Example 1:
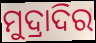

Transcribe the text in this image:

ମୁଦ୍ରାଦିର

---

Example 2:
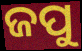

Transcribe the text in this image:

ଜପୁ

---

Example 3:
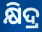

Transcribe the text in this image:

କ୍ଷିଦ୍ର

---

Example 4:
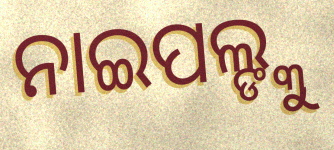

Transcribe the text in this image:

ନାଇପଲ୍ଙ୍କୁ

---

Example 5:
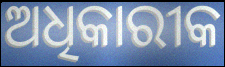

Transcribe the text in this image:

ଅଧିକାରୀକ